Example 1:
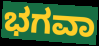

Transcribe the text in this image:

ಭಗವಾ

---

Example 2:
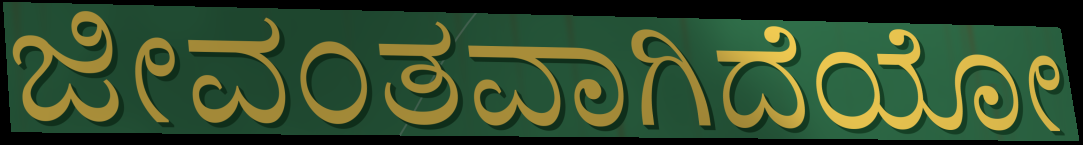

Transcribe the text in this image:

ಜೀವಂತವಾಗಿದೆಯೋ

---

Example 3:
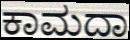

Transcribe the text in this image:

ಕಾಮದಾ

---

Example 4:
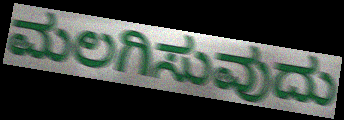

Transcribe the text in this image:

ಮಲಗಿಸುವುದು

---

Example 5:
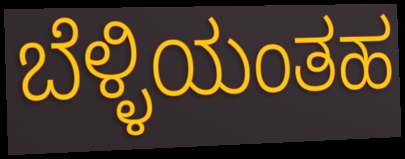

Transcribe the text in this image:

ಬೆಳ್ಳಿಯಂತಹ